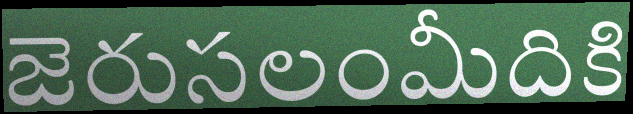
జెరుసలంమీదికి